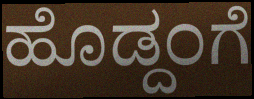
ಹೊಡ್ದಂಗೆ